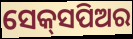
ସେକ୍‌ସପିଅର